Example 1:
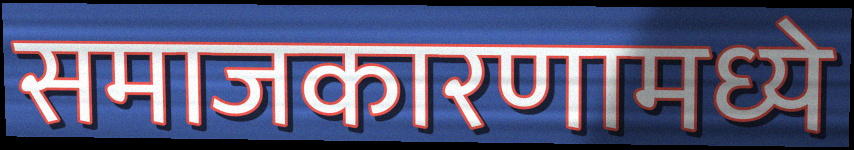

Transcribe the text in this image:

समाजकारणामध्ये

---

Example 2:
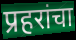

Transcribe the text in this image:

प्रहरांचा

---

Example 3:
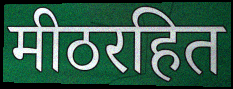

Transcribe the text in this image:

मीठरहित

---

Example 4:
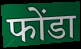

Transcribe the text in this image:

फोंडा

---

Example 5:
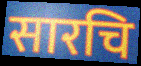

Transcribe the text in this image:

सारचि